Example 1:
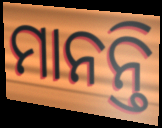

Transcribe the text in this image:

ମାନନ୍ତି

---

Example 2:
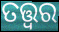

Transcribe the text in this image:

ତତ୍ତ୍ଵର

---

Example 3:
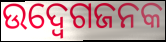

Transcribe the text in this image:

ଉଦ୍ବେଗଜନକ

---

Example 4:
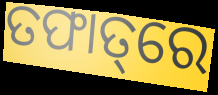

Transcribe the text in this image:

ତଫାତ୍‌ରେ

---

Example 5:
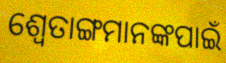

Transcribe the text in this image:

ଶ୍ୱେତାଙ୍ଗମାନଙ୍କପାଇଁ